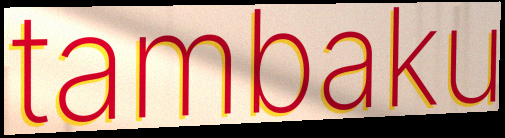
tambaku